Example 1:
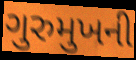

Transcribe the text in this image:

ગુરુમુખની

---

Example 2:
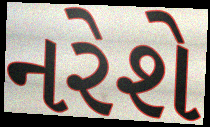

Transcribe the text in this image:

નરેશે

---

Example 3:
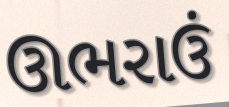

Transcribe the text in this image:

ઊભરાઉં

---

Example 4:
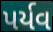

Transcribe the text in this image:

પર્યવ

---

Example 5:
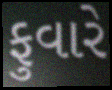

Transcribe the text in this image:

ફુવારે